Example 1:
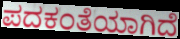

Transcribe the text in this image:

ಪದಕಂತೆಯಾಗಿದೆ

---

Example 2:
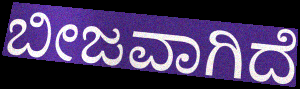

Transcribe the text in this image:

ಬೀಜವಾಗಿದೆ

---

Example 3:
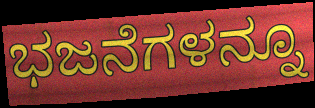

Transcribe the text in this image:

ಭಜನೆಗಳನ್ನೂ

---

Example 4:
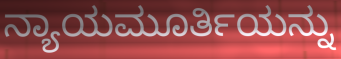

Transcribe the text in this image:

ನ್ಯಾಯಮೂರ್ತಿಯನ್ನು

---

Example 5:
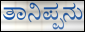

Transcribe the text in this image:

ತಾನಿಪ್ಪನು